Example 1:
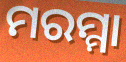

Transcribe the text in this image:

ମରମ୍ମା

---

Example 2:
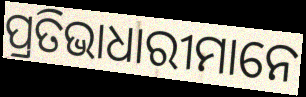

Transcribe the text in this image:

ପ୍ରତିଭାଧାରୀମାନେ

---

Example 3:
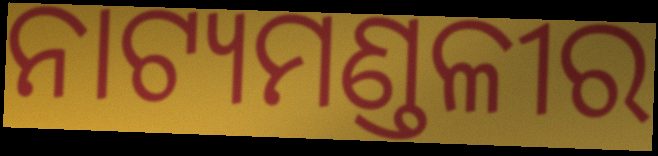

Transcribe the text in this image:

ନାଟ୍ୟମଣ୍ଡଳୀର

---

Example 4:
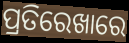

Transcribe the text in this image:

ପ୍ରତିରେଖାରେ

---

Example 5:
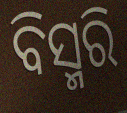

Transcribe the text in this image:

ବିସ୍ମରି